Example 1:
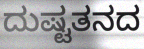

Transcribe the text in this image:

ದುಷ್ಟತನದ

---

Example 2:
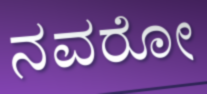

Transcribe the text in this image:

ನವರೋ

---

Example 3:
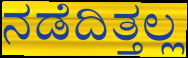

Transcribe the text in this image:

ನಡೆದಿತ್ತಲ್ಲ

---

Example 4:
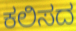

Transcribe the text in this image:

ಕಲಿಸದ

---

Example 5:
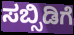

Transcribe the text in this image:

ಸಬ್ಸಿಡಿಗೆ